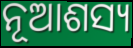
ନୂଆଶସ୍ୟ